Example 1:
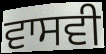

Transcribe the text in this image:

ਵਾਸਵੀ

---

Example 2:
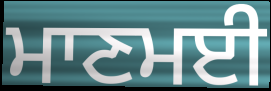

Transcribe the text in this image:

ਮਾਣਮਈ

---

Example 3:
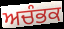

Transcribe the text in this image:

ਅਚੰਭਕ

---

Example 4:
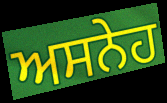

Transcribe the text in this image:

ਅਸਨੇਹ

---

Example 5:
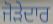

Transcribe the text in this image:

ਜੋੜੇਦਾਰ